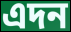
এদন